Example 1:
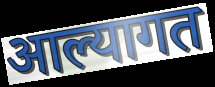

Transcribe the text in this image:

आल्यागत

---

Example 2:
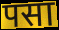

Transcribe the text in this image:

पसा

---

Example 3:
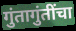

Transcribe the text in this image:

गुंतागुंतींचा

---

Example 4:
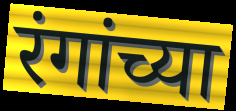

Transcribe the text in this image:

रंगांच्या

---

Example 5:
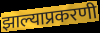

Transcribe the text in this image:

झाल्याप्रकरणी